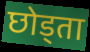
छोड्ता